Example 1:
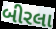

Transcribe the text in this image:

બીરલા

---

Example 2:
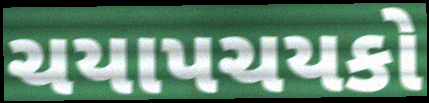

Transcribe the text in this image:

ચયાપચયકો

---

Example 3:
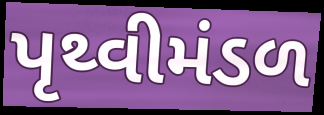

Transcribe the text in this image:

પૃથ્વીમંડળ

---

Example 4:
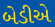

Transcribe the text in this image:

બેડીએ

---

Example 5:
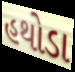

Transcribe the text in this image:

હથોડા